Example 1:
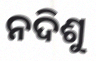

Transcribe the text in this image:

ନଦିଶୁ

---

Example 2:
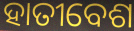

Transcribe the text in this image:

ହାତୀବେଶ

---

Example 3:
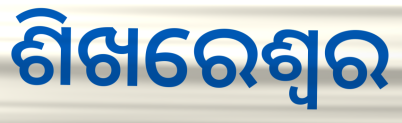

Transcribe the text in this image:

ଶିଖରେଶ୍ୱର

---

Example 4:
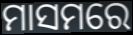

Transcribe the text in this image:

ମାସମରେ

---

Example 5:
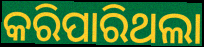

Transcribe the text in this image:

କରିପାରିଥଲା